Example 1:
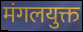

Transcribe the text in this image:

मंगलयुक्त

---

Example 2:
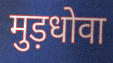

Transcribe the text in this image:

मुड़धोवा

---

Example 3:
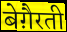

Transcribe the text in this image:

बेग़ैरती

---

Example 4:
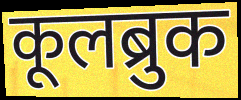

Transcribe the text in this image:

कूलब्रुक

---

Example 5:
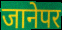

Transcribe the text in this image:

जानेपर